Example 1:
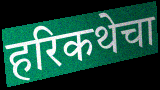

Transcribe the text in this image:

हरिकथेचा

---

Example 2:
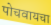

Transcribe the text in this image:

पोचवायचा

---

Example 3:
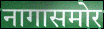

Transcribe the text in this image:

नागासमोर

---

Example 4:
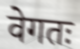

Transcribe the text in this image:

वेगतः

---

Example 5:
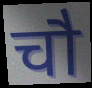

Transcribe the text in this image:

चौ